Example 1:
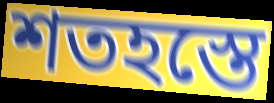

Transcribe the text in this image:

শতহস্তে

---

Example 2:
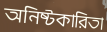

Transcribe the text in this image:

অনিষ্টকারিতা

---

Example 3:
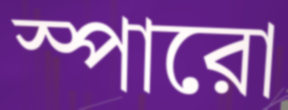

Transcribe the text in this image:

স্পারো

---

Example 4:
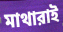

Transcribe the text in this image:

মাথারাই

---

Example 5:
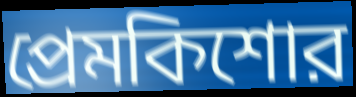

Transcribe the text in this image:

প্রেমকিশোর